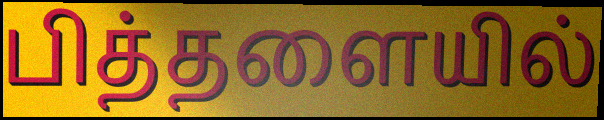
பித்தளையில்